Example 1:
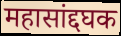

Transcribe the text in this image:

महासांद्दघक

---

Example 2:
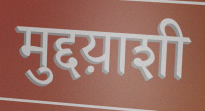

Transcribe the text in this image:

मुद्दय़ाशी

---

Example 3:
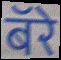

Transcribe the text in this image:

बॅरे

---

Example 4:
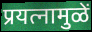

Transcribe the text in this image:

प्रयत्नामुळें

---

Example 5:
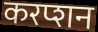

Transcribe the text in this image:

करप्शन